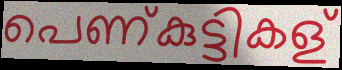
പെണ്കുട്ടികള്